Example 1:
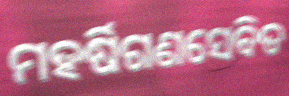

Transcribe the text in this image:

ମହର୍ଷିଗଣସେବିତ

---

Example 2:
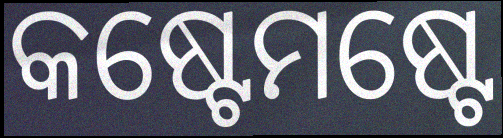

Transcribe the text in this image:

କଷ୍ଟେମଷ୍ଟେ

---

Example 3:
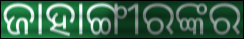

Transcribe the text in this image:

ଜାହାଙ୍ଗୀରଙ୍କର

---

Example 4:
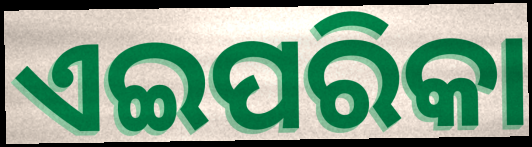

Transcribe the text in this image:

ଏଇପରିକା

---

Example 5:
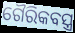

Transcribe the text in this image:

ଗୈରିକବସ୍ତ୍ର